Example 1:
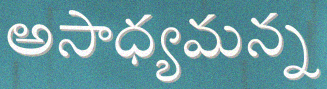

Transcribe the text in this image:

అసాధ్యమన్న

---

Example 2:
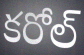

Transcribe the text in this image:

కరోల్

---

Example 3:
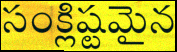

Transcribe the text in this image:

సంక్లిష్టమైన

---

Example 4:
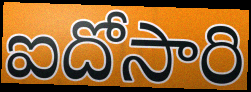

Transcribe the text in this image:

ఐదోసారి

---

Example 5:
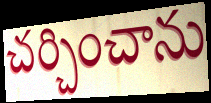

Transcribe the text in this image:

చర్చించాను